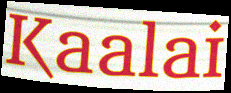
Kaalai